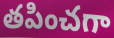
తపించగా